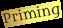
Priming